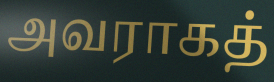
அவராகத்